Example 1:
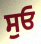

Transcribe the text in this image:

ਸੁਓ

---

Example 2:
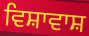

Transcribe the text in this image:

ਵਿਸ਼ਾਵਾਸ਼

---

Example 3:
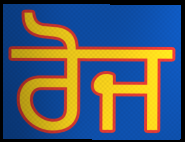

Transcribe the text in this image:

ਰੋਜ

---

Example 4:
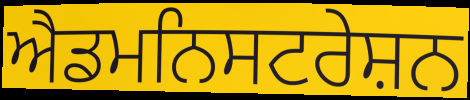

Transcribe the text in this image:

ਐਡਮਨਿਸਟਰੇਸ਼ਨ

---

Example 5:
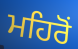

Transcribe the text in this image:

ਮਹਿਰੋਂ